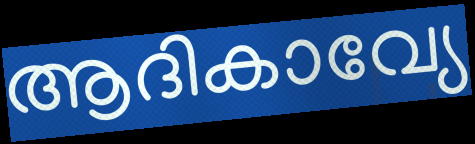
ആദികാവ്യേ